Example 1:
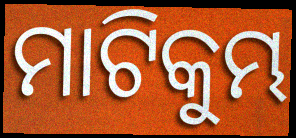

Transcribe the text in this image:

ମାଟିକୁମ୍ଭ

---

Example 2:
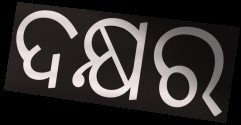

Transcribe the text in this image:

ଦକ୍ଷର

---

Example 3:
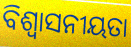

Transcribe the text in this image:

ବିଶ୍ୱାସନୀୟତା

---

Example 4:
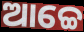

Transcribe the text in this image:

ଆଚ୍ଚେ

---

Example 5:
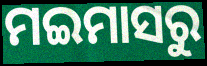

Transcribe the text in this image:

ମଇମାସରୁ